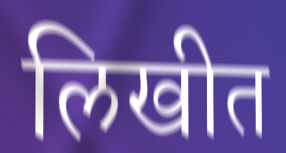
लिखीत